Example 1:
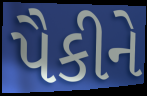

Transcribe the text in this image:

પૈકીને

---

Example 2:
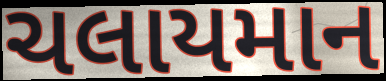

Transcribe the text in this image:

ચલાયમાન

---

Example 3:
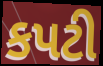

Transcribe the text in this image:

કપટી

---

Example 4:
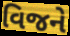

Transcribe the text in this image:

વિજને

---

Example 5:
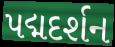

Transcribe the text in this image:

પદ્મદર્શન